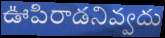
ఊపిరాడనివ్వదు